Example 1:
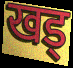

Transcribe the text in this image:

खड्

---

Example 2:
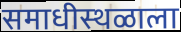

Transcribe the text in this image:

समाधीस्थळाला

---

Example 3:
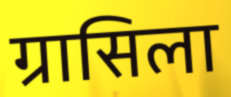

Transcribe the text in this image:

ग्रासिला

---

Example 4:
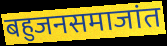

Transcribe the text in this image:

बहुजनसमाजांत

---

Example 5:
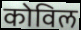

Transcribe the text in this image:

कोविल